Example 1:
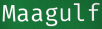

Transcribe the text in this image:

Maagulf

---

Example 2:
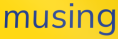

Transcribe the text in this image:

musing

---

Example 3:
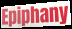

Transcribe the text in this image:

Epiphany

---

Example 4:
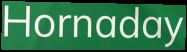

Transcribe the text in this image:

Hornaday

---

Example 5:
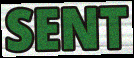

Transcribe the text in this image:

SENT